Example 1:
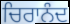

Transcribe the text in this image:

ਚਿਰਾਨੰਦ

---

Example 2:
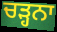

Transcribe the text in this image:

ਚੜ੍ਹਨਾ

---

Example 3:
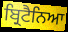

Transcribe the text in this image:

ਬ੍ਰਿਟੈਨਿਆ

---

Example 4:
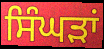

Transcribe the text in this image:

ਸਿੰਘੜਾਂ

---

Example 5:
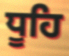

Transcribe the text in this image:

ਧੂਹਿ